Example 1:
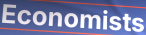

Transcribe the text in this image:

Economists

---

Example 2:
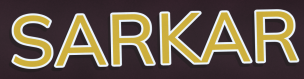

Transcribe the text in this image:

SARKAR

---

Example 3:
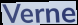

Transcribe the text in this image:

Verne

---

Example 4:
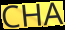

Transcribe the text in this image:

CHA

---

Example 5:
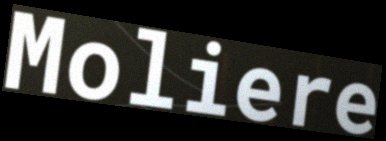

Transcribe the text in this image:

Moliere